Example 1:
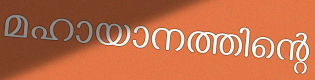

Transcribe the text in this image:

മഹായാനത്തിന്റെ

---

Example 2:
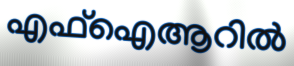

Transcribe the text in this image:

എഫ്ഐആറിൽ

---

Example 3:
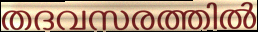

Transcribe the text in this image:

തദവസരത്തിൽ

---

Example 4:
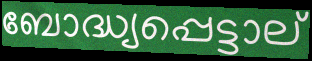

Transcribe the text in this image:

ബോദ്ധ്യപ്പെട്ടാല്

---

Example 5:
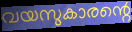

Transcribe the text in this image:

വയസുകാരന്റെ